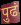
पुढं